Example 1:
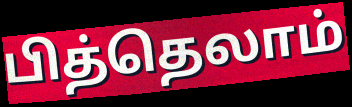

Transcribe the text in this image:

பித்தெலாம்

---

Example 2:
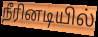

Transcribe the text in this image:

நீரினடியில்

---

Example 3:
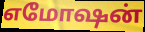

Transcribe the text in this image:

எமோஷன்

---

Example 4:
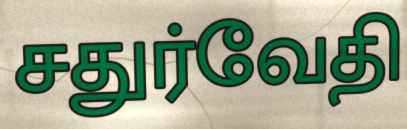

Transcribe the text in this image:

சதுர்வேதி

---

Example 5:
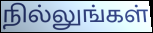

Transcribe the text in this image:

நில்லுங்கள்